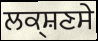
ਲਕ੍ਸ਼ਣਸੇ